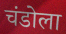
चंडोला